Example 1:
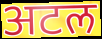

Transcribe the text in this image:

अटल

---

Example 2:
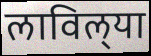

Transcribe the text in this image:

लाविल्या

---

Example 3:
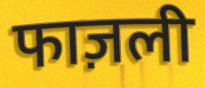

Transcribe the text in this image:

फाज़ली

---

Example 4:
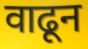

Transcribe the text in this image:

वाढून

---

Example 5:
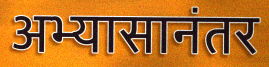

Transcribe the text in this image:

अभ्यासानंतर